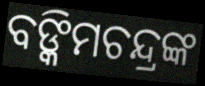
ବଙ୍କିମଚନ୍ଦ୍ରଙ୍କ